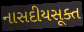
નાસદીયસૂક્ત